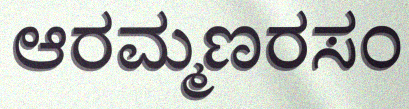
ಆರಮ್ಮಣರಸಂ